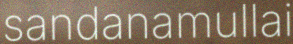
sandanamullai